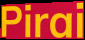
Pirai